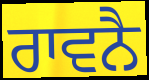
ਰਾਵਨੈ